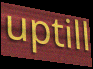
uptill